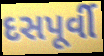
દસપૂર્વી